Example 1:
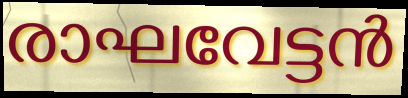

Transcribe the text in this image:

രാഘവേട്ടൻ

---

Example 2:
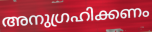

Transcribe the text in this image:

അനുഗ്രഹിക്കണം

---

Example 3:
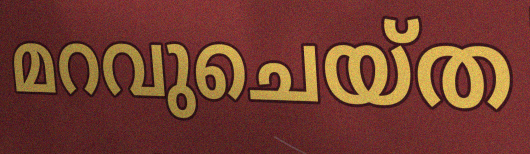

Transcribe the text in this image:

മറവുചെയ്ത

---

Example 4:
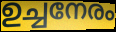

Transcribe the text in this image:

ഉച്ചനേരം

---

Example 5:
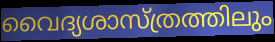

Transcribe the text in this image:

വൈദ്യശാസ്ത്രത്തിലും